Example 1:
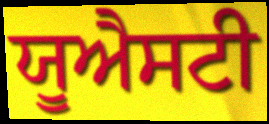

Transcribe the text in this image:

ਯੂਐਸਟੀ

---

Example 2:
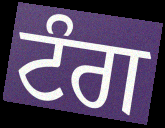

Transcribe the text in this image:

ਟੰਗ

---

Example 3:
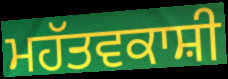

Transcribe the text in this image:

ਮਹੱਤਵਕਾਸ਼ੀ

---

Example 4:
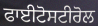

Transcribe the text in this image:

ਫਾਈਟੋਸਟੀਰੋਲ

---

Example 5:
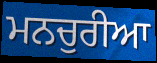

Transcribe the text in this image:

ਮਨਚੁਰੀਆ